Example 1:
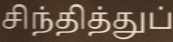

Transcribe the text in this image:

சிந்தித்துப்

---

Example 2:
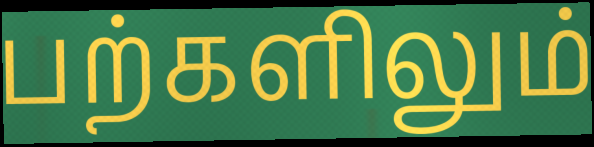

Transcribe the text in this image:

பற்களிலும்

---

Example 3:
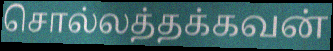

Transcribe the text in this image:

சொல்லத்தக்கவன்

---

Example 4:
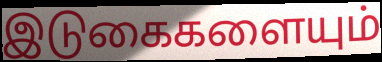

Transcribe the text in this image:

இடுகைகளையும்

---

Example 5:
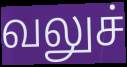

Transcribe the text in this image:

வலுச்